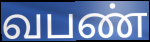
வபண்